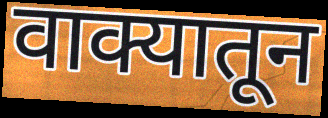
वाक्यातून